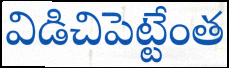
విడిచిపెట్టేంత